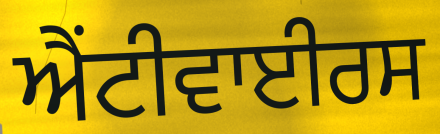
ਐਂਟੀਵਾਈਰਸ